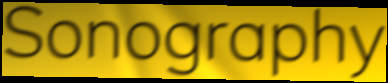
Sonography